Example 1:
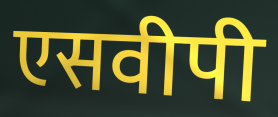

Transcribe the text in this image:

एसवीपी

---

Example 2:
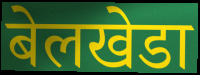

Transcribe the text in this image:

बेलखेडा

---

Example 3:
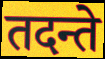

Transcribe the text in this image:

तदन्ते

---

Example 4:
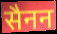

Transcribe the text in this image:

सैनन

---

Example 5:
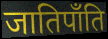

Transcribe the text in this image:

जातिपाँति